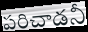
పరిచాడనీ